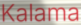
Kalama